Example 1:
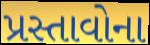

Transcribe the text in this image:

પ્રસ્તાવોના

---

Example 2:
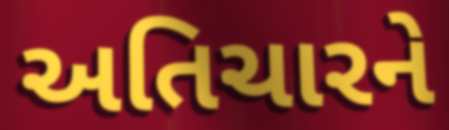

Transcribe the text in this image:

અતિચારને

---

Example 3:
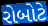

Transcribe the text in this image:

રોબોટે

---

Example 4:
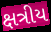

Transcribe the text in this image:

ક્ષત્રીય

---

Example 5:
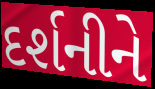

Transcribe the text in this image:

દર્શનીને